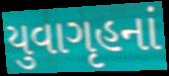
યુવાગૃહનાં